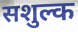
सशुल्क